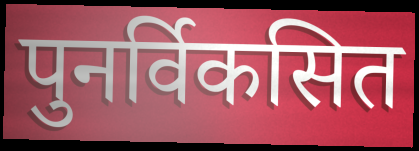
पुनर्विकसित